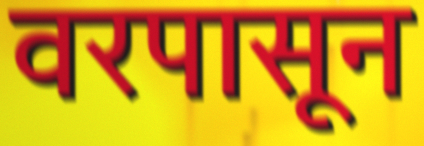
वरपासून